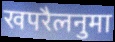
खपरैलनुमा